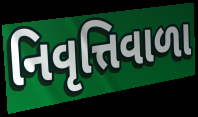
નિવૃત્તિવાળા